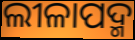
ଲୀଳାପଦ୍ମ